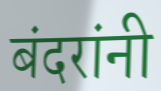
बंदरांनी